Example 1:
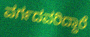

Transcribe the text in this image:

ವರ್ಗದವರಿದ್ದಾರೆ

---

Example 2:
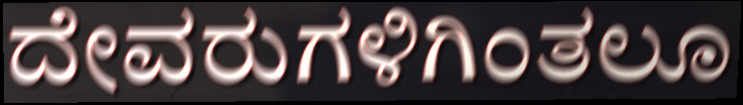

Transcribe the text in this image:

ದೇವರುಗಳಿಗಿಂತಲೂ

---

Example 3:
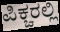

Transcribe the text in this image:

ಪಿಕ್ಚರಲ್ಲಿ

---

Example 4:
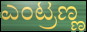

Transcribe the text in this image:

ಎಂಟ್ರಣ್ಣ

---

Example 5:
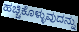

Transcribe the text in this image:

ಹಚ್ಚಿಕೊಳ್ಳುವುದನ್ನು